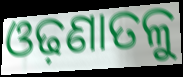
ଓଢ଼ଣାତଳୁ